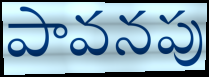
పావనపు